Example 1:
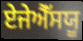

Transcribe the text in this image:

ਏਜੇਐੱਸਯੂ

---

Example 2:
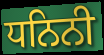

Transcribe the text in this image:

ਧਨਿਨੀ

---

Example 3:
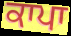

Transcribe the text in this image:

ਕਾਪਾ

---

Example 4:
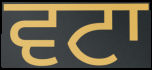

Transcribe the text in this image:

ਵਟਾ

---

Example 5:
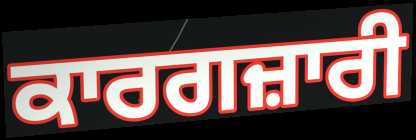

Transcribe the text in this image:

ਕਾਰਗਜ਼ਾਰੀ